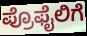
ಪ್ರೊಫೈಲಿಗೆ